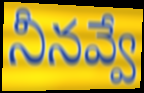
నీనవ్వే